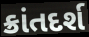
ક્રાંતદર્શ